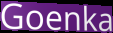
Goenka